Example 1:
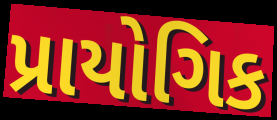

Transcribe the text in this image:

પ્રાયોગિક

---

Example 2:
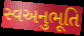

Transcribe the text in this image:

સ્વઅનુભૂતિ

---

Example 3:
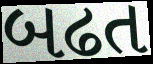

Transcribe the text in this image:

બઢત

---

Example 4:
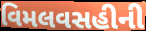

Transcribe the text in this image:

વિમલવસહીની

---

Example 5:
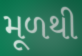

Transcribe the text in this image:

મૂળથી